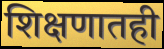
शिक्षणातही